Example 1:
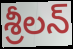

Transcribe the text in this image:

శ్రీలన్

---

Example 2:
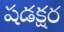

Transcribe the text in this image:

షడక్షర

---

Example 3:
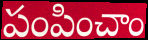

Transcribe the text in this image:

పంపించాం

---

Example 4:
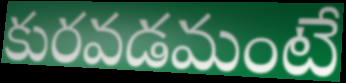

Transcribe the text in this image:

కురవడమంటే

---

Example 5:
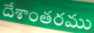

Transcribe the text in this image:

దేశాంతరము